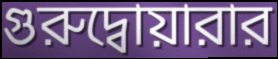
গুরুদ্বোয়ারার